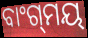
ବାଂଗ୍‌ମୟ